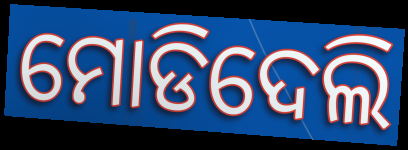
ମୋଡିଦେଲି